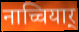
नाच्चियार्